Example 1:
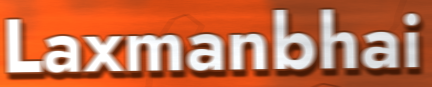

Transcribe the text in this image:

Laxmanbhai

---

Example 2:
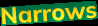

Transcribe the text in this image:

Narrows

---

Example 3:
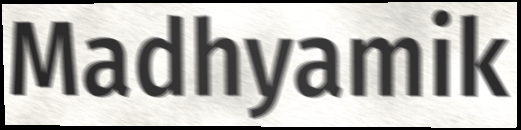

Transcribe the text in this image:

Madhyamik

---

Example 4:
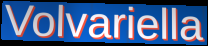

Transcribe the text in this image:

Volvariella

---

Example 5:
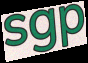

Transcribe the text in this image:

sgp